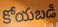
కోయబడి